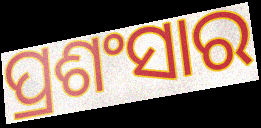
ପ୍ରଶଂସାର